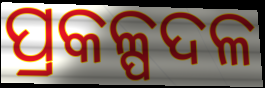
ପ୍ରକଳ୍ପଦଳ